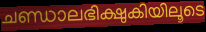
ചണ്ഡാലഭിക്ഷുകിയിലൂടെ